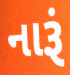
નારૂં